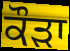
ਕੌਡ਼ਾ